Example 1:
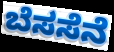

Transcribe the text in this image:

ಬೆಸಸೆನೆ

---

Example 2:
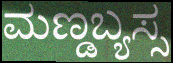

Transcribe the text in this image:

ಮಣ್ಡಬ್ಯಸ್ಸ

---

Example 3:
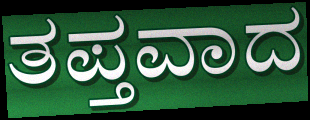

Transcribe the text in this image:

ತಪ್ತವಾದ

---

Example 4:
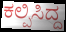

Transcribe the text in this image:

ಕಲ್ಪಿಸಿದ್ದ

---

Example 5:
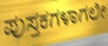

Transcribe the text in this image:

ಪುಸ್ತಕಗಳಾಗಲೀ